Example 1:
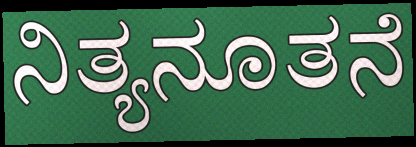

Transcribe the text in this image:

ನಿತ್ಯನೂತನೆ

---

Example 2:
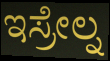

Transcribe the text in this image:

ಇಸ್ರೇಲ್ನ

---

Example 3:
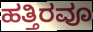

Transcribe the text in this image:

ಹತ್ತಿರವೂ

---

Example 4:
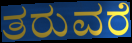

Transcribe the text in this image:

ತರುವರೆ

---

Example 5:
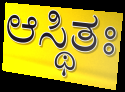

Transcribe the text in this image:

ಆಸ್ಥಿತಃ